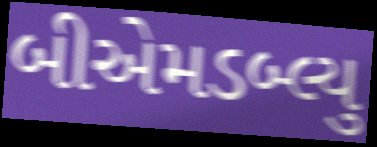
બીએમડબ્લ્યુ